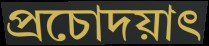
প্রচোদয়াৎ